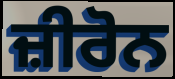
ਜ਼ੀਰੋਨ